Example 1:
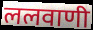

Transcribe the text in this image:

ललवाणी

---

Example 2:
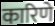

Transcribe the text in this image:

कारिणे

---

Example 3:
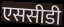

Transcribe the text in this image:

एससीडी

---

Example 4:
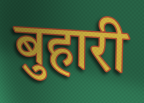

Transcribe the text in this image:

बुहारी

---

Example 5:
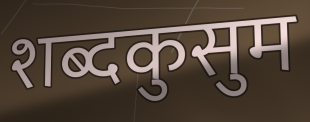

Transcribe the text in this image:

शब्दकुसुम